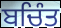
ਬਚਿੰਤ